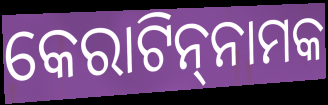
କେରାଟିନ୍‌ନାମକ